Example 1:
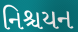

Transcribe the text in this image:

નિશ્ચયન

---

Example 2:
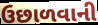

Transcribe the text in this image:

ઉછાળવાની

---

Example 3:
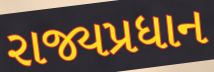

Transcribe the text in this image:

રાજ્યપ્રધાન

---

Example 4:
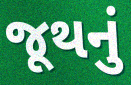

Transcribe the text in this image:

જૂથનું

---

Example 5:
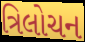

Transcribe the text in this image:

ત્રિલોચન